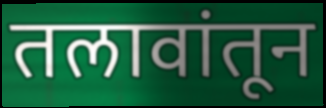
तलावांतून